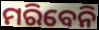
ମରିବେନି